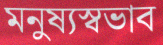
মনুষ্যস্বভাব